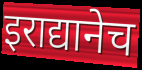
इराद्यानेच